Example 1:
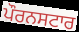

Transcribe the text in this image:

ਪੌਰਨਸਟਾਰ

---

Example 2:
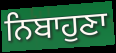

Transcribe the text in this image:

ਨਿਬਾਹੁਣਾ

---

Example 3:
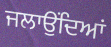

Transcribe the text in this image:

ਜਲਾਉਂਦਿਆਂ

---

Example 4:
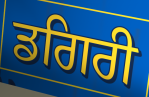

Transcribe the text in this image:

ਡਗਿਰੀ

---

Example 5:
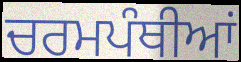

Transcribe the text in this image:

ਚਰਮਪੰਥੀਆਂ